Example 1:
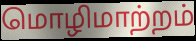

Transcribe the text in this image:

மொழிமாற்றம்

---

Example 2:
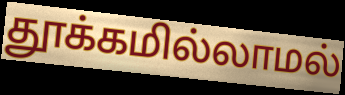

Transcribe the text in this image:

தூக்கமில்லாமல்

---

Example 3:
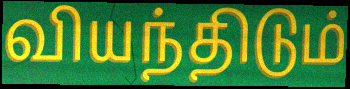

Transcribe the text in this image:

வியந்திடும்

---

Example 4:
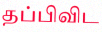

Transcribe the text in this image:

தப்பிவிட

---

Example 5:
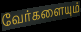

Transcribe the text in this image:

வேர்களையும்